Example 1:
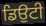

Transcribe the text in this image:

ਡਿਉਟੀ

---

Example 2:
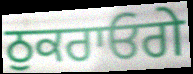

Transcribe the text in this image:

ਠੁਕਰਾਓਗੇ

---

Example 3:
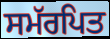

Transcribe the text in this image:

ਸਮੱਰਪਿਤ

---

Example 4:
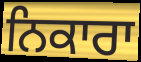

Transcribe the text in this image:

ਨਿਕਾਰਾ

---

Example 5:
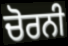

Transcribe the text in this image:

ਚੋਰਨੀ